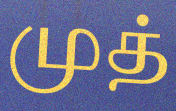
முத்